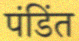
पंडिंत